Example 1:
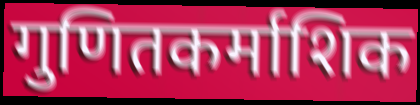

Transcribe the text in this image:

गुणितकर्माशिक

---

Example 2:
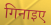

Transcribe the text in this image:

गिनाइए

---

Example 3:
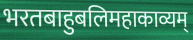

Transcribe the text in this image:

भरतबाहुबलिमहाकाव्यम्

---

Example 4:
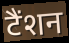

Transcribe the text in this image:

टैंशन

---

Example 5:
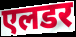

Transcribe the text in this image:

एलडर